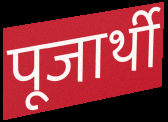
पूजार्थी